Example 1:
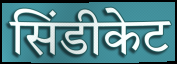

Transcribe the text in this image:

सिंडीकेट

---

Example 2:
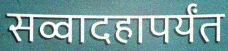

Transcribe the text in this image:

सव्वादहापर्यंत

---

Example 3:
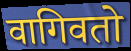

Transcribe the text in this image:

वागिवतो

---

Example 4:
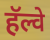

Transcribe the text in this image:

हॅल्वे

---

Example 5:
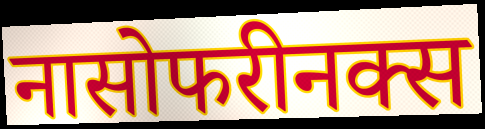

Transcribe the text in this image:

नासोफरीनक्स